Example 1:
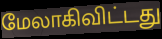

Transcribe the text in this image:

மேலாகிவிட்டது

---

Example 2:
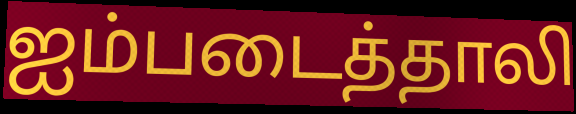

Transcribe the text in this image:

ஐம்படைத்தாலி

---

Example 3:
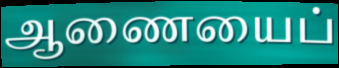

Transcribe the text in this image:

ஆணையைப்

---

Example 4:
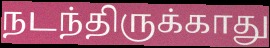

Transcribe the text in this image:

நடந்திருக்காது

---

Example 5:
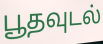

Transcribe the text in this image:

பூதவுடல்